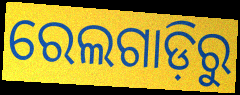
ରେଲଗାଡ଼ିରୁ